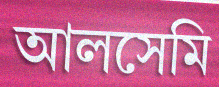
আলসেমি